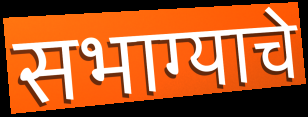
सभाग्याचे